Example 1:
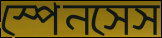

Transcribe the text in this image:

স্পেনসেস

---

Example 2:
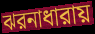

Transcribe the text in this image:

ঝরনাধারায়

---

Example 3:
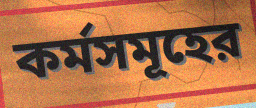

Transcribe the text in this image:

কর্মসমূহের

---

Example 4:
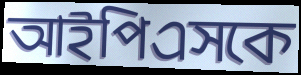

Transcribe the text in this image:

আইপিএসকে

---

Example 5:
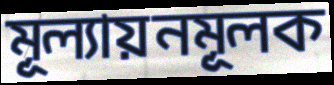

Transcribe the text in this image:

মূল্যায়নমূলক